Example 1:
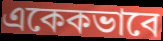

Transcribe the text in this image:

একেকভাবে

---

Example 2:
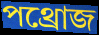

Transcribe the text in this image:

পথ্রোজ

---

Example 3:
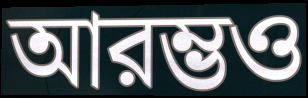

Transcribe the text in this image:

আরম্ভও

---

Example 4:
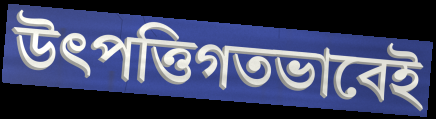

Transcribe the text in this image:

উৎপত্তিগতভাবেই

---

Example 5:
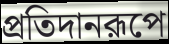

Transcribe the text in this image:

প্রতিদানরূপে